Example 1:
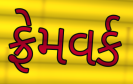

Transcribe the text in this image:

ફ્રેમવર્ક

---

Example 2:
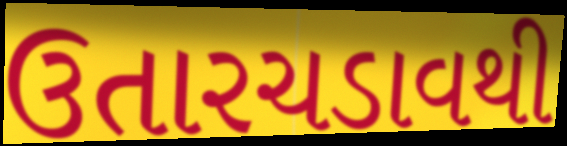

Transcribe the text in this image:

ઉતારચડાવથી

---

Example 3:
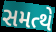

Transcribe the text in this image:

સમત્થે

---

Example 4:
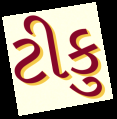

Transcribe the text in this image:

ટીકુ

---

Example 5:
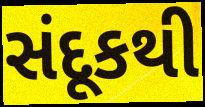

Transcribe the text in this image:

સંદૂકથી